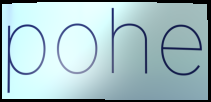
pohe